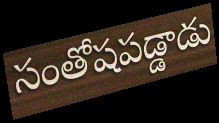
సంతోషపడ్డాడు